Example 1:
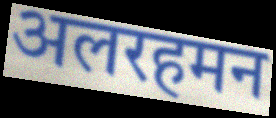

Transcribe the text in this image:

अलरहमन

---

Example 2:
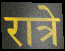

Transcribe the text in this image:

रात्रे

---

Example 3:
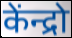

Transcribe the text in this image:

केंन्द्रो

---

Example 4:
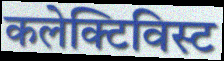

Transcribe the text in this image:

कलेक्टिविस्ट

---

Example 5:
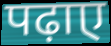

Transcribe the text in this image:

पढ़ाए